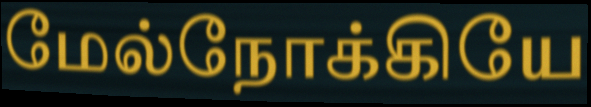
மேல்நோக்கியே